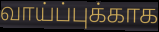
வாய்ப்புக்காக